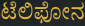
ಟೆಲಿಫೋನ